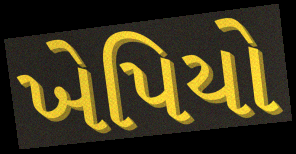
ખેપિયો